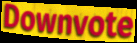
Downvote